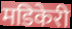
मडिकेरी